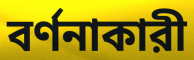
বর্ণনাকারী